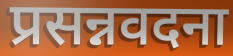
प्रसन्नवदना